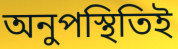
অনুপস্থিতিই